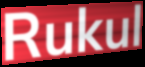
Rukul